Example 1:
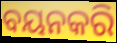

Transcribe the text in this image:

ବୟନକରି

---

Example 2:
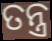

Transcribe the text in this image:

ତନ୍ତ୍ର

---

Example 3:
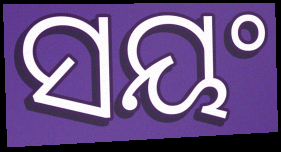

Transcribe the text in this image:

ସୟଂ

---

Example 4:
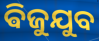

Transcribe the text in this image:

ଵିଜୁଯୁବ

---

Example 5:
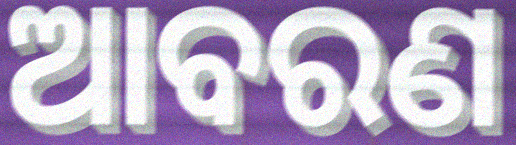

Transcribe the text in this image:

ଆବରଣ